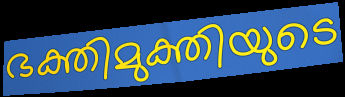
ഭക്തിമുക്തിയുടെ